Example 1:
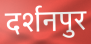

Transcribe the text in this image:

दर्शनपुर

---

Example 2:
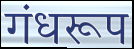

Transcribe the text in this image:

गंधरूप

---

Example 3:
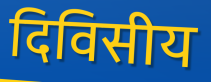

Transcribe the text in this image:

दिविसीय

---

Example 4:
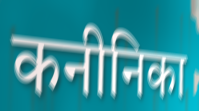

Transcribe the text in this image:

कनीनिका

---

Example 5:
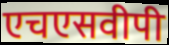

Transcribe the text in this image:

एचएसवीपी